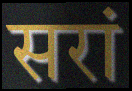
सरां